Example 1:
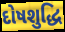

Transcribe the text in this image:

દોષશુદ્ધિ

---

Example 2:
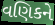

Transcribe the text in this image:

વણિકને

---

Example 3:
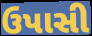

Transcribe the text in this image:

ઉપાસી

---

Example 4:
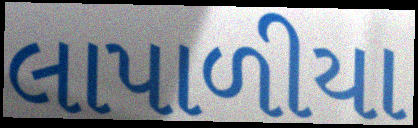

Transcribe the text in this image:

લાપાળીયા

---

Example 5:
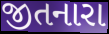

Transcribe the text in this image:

જીતનારા